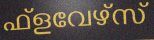
ഫ്ളവേഴ്സ്